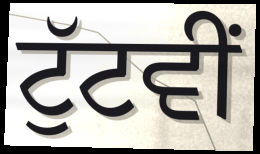
ਟੁੱਟਵੀਂ